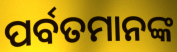
ପର୍ବତମାନଙ୍କ